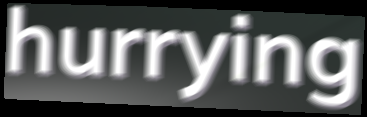
hurrying